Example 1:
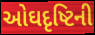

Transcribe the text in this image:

ઓઘદૃષ્ટિની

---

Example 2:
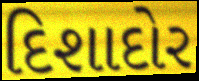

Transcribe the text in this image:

દિશાદોર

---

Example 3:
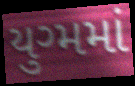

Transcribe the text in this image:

યુગ્મમાં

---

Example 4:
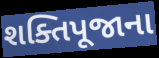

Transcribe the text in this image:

શક્તિપૂજાના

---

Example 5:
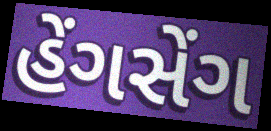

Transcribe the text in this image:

હેંગસેંગ